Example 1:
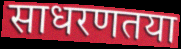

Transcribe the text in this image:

साधरणतया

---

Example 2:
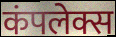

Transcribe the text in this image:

कंपलेक्स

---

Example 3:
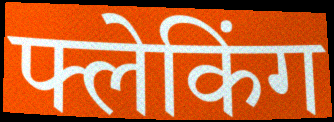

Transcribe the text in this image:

फ्लेकिंग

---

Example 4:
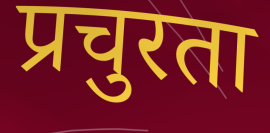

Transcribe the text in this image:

प्रचुरता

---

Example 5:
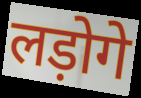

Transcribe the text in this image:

लड़ोगे